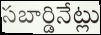
సబార్డినేట్లు